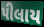
પીલાય